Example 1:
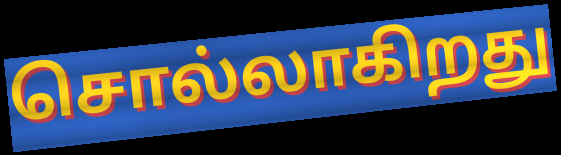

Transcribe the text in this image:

சொல்லாகிறது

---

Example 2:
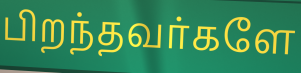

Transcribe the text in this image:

பிறந்தவர்களே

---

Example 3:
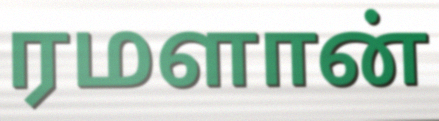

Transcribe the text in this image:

ரமளான்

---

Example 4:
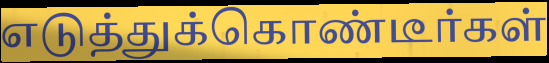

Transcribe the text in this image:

எடுத்துக்கொண்டீர்கள்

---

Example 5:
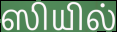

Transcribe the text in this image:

ஸியில்